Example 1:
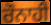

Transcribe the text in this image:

ਰੌਨਾਹੀ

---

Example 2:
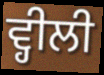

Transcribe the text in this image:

ਵ੍ਹੀਲੀ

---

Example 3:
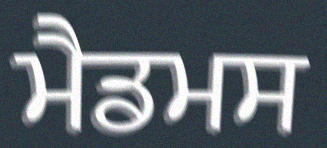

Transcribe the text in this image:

ਮੈਡਮਸ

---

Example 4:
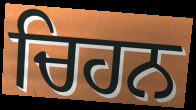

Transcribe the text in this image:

ਚਿਹਨ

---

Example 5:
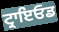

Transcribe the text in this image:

ਟ੍ਰਾਇਓਡ